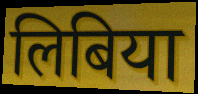
लिबिया